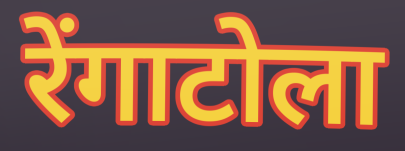
रेंगाटोला